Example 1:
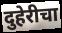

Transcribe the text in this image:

दुहेरीचा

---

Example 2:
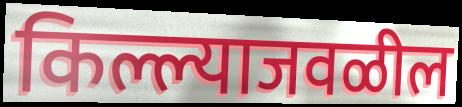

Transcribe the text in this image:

किल्ल्याजवळील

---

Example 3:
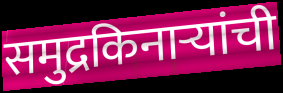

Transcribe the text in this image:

समुद्रकिनाऱ्यांची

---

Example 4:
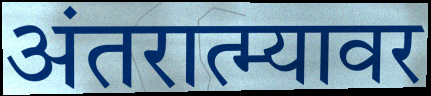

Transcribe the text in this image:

अंतरात्म्यावर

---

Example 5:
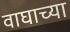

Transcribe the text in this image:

वाघाच्या